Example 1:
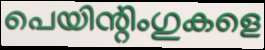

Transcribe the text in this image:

പെയിന്റിംഗുകളെ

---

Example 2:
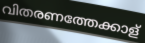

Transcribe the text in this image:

വിതരണത്തേക്കാള്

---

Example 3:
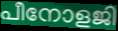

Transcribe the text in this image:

പീനോളജി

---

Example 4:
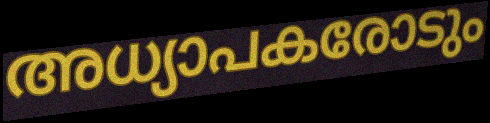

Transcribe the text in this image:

അധ്യാപകരോടും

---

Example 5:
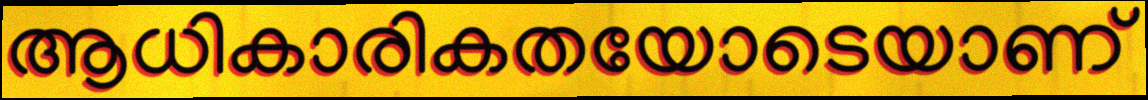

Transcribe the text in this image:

ആധികാരികതയോടെയാണ്